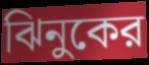
ঝিনুকের